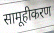
सामूहीकरण